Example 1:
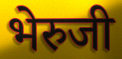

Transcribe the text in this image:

भेरुजी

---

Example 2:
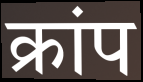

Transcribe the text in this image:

क्रांप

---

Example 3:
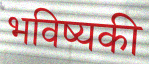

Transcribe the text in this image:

भविष्यकी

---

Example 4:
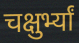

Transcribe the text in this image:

चक्षुर्भ्यां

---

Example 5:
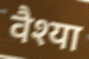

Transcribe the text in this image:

वैश्या